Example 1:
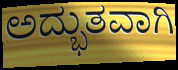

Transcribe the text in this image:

ಅದ್ಭುತವಾಗಿ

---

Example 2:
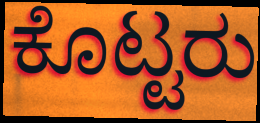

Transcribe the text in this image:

ಕೊಟ್ಟರು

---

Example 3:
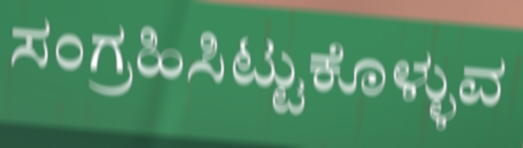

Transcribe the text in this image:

ಸಂಗ್ರಹಿಸಿಟ್ಟುಕೊಳ್ಳುವ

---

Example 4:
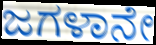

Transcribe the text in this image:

ಜಗಳಾನೇ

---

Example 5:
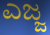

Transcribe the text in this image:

ಎಜ್ಜ